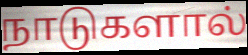
நாடுகளால்